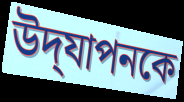
উদ্‌যাপনকে